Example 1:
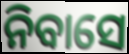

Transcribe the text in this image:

ନିବାସେ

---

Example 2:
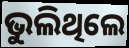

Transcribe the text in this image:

ଭୁଲିଥିଲେ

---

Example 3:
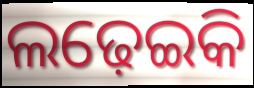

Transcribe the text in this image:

ଲଢ଼େଇକି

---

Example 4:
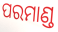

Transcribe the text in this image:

ପରମାଣ୍ଡ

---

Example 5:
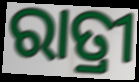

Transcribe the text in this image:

ରାତ୍ରୀ